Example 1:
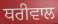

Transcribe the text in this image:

ਥਰੀਵਾਲ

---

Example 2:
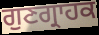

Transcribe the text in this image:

ਗੁਣਗ੍ਰਾਹਕ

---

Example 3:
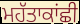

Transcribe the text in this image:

ਮਹੱਤਾਕਾਂਛੀ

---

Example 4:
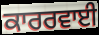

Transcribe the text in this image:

ਕਾਰਰਵਾਈ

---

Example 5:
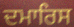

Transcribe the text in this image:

ਦਮਾਰਿਸ